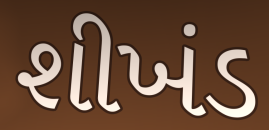
શીખંડ